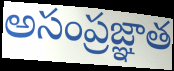
అసంప్రజ్ఞాత